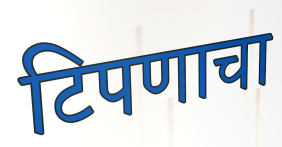
टिपणाचा